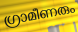
ഗ്രാമീണരും